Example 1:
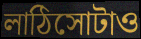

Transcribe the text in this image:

লাঠিসোটাও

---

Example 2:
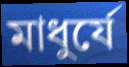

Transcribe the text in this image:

মাধুর্যে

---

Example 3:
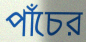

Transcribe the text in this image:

পাঁচের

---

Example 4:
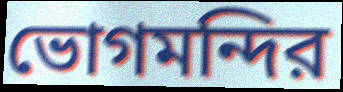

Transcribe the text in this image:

ভোগমন্দির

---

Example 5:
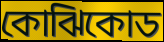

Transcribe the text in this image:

কোঝিকোড